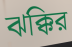
ঝক্কির